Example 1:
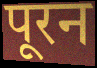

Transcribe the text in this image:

पूरन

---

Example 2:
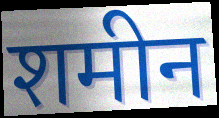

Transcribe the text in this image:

शमीन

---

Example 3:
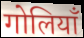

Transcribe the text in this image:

गोलियाँ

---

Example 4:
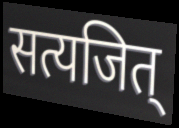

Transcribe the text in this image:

सत्यजित्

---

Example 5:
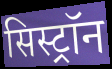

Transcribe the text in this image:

सिस्ट्रॉन